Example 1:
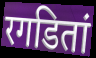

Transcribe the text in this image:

रगडितां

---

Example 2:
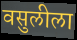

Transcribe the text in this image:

वसुलीला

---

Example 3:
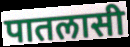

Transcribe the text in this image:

पातलासी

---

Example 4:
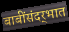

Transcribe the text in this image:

बाबींसंदर्भात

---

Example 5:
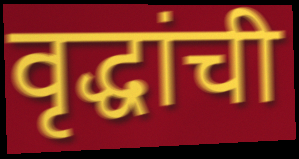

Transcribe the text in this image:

वृद्धांची